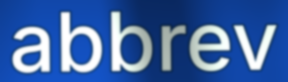
abbrev